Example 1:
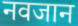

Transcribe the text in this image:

नवजान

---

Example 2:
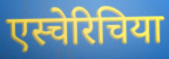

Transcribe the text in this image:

एस्चेरिचिया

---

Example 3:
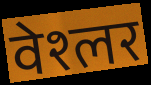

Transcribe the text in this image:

वेश्लर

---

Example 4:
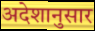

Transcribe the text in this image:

अदेशानुसार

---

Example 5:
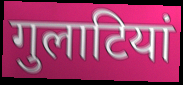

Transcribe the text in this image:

गुलाटियां